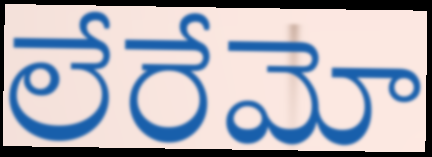
లేరేమో